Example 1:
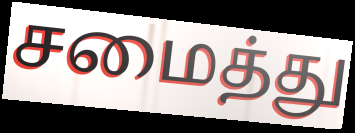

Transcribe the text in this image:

சமைத்து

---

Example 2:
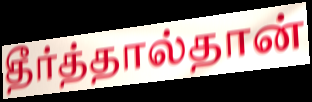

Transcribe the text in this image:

தீர்த்தால்தான்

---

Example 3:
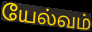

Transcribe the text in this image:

யேல்வம்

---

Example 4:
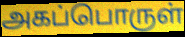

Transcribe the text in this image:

அகப்பொருள்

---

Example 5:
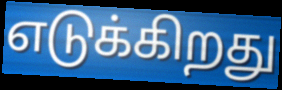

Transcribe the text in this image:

எடுக்கிறது